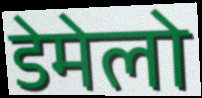
डेमेलो